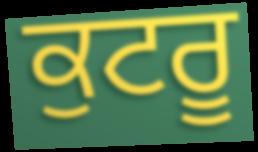
ਕੁਟਰੂ